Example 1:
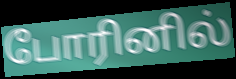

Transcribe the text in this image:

போரினில்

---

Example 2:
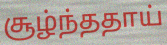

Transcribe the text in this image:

சூழ்ந்ததாய்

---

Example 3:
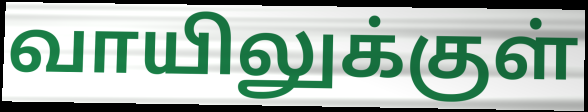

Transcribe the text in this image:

வாயிலுக்குள்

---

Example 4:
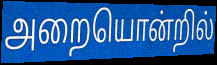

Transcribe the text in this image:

அறையொன்றில்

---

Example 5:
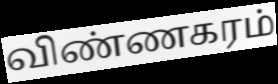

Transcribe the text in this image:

விண்ணகரம்